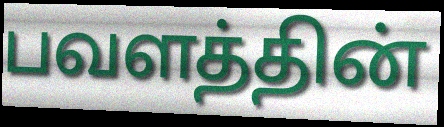
பவளத்தின்